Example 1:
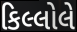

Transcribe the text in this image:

કિલ્લોલે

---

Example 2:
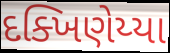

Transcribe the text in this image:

દક્ખિણેય્યા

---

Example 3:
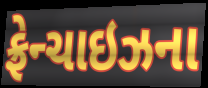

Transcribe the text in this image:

ફ્રેન્ચાઇઝના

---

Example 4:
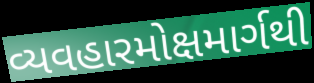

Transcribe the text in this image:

વ્યવહારમોક્ષમાર્ગથી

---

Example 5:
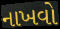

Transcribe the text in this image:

નાખવો